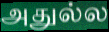
அதுல்ல